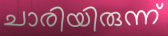
ചാരിയിരുന്ന്